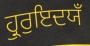
ਹ੍ਰੁਰੁਇਦਯਁ